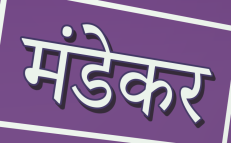
मंडेकर